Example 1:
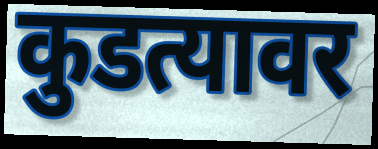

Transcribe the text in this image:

कुडत्यावर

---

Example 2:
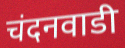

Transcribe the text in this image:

चंदनवाडी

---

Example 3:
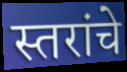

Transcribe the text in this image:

स्तरांचे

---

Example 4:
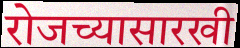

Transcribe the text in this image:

रोजच्यासारखी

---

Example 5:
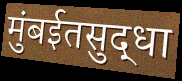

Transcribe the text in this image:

मुंबईतसुद्धा